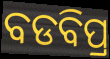
ବଡବିପ୍ର